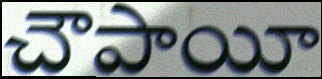
చౌపాయీ